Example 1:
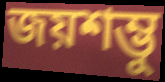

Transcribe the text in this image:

জয়শম্ভু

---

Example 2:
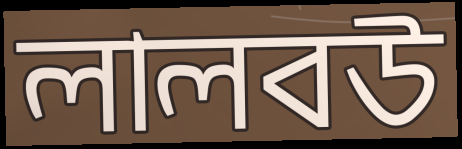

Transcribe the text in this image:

লালবউ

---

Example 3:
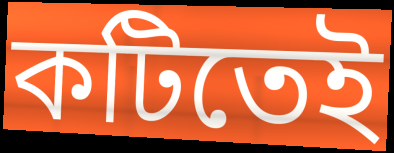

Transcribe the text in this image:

কটিতেই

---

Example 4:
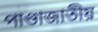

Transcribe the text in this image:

পাণ্ডাজাতীয়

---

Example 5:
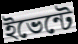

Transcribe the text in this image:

ইভেন্টে